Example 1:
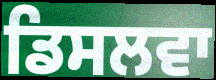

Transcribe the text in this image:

ਡਿਸਲਵਾ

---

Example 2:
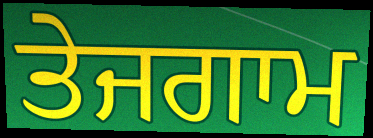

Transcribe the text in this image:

ਤੇਜਗਾਮ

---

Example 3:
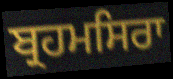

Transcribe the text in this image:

ਬ੍ਰਹਮਸਿਰਾ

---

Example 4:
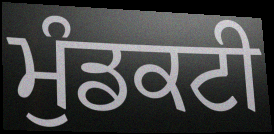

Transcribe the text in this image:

ਮੁੰਡਕਟੀ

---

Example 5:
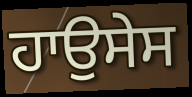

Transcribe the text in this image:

ਹਾਉਸੇਸ